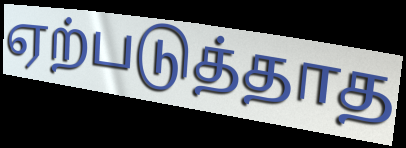
ஏற்படுத்தாத